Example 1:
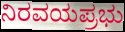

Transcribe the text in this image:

ನಿರವಯಪ್ರಭು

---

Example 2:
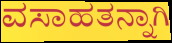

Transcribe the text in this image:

ವಸಾಹತನ್ನಾಗಿ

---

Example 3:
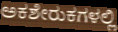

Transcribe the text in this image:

ಅಕಶೇರುಕಗಳಲ್ಲಿ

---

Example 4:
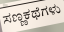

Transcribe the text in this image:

ಸಣ್ಣಕಥೆಗಳು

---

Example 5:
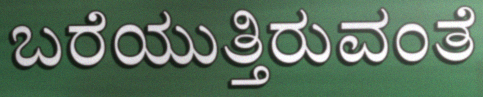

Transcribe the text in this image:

ಬರೆಯುತ್ತಿರುವಂತೆ